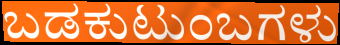
ಬಡಕುಟುಂಬಗಳು